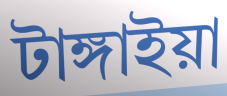
টাঙ্গাইয়া